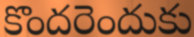
కొందరెందుకు